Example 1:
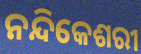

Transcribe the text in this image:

ନନ୍ଦିକେଶରୀ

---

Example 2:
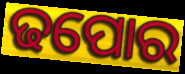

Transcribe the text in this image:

ଢପୋର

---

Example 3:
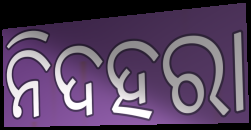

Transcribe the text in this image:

ନିଦହରା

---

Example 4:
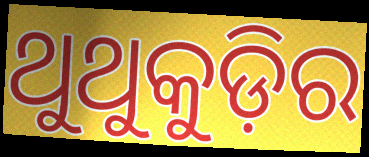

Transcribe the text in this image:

ଥୁଥୁକୁଡ଼ିର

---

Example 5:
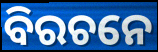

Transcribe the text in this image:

ବିରଚନେ